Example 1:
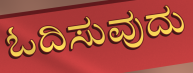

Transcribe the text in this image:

ಓದಿಸುವುದು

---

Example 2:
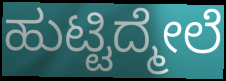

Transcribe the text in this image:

ಹುಟ್ಟಿದ್ಮೇಲೆ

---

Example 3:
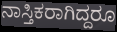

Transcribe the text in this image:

ನಾಸ್ತಿಕರಾಗಿದ್ದರೂ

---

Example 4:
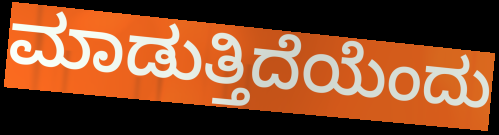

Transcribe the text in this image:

ಮಾಡುತ್ತಿದೆಯೆಂದು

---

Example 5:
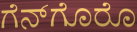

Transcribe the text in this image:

ಗೆನ್‌ಗೊರೊ